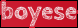
boyese